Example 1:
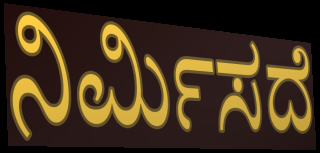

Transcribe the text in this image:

ನಿರ್ಮಿಸದೆ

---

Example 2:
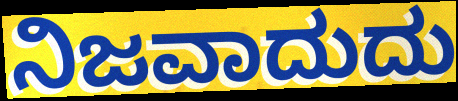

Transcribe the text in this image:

ನಿಜವಾದುದು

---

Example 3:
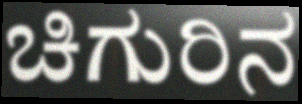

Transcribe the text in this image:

ಚಿಗುರಿನ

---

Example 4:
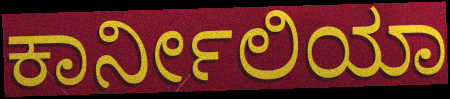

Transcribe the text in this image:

ಕಾರ್ನೀಲಿಯಾ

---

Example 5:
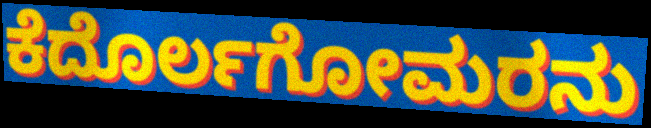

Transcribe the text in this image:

ಕೆದೊರ್ಲಗೋಮರನು